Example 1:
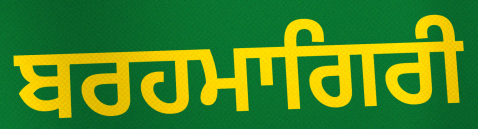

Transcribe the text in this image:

ਬਰਹਮਾਗਿਰੀ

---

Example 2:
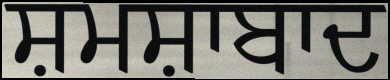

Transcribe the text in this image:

ਸ਼ਮਸ਼ਾਬਾਦ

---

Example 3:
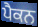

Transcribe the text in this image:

ਪੈਕਨ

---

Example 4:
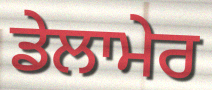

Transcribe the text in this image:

ਡੇਲਾਮੇਰ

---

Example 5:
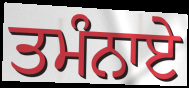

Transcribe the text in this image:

ਤਮੰਨਾਏ